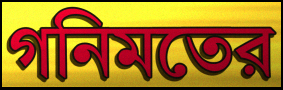
গনিমতের